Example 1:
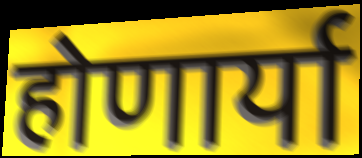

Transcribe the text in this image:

होणार्या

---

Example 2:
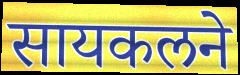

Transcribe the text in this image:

सायकलने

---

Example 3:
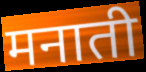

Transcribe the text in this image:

मनाती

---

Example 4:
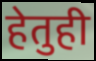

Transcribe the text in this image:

हेतुही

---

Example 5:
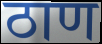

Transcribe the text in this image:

ठाण